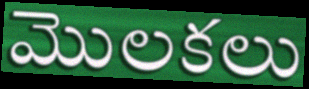
మొలకలు